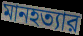
মানহত্যার